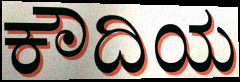
ಕೌದಿಯ